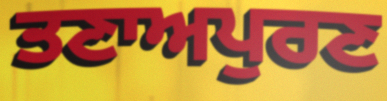
ਤਣਾਅਪੁਰਣ